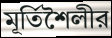
মূর্তিশৈলীর